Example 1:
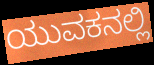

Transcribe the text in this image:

ಯುವಕನಲ್ಲಿ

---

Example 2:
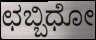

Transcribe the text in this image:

ಛಬ್ಬಿಧೋ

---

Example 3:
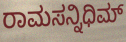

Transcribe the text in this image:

ರಾಮಸನ್ನಿಧಿಮ್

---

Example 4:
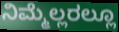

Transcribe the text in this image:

ನಿಮ್ಮೆಲ್ಲರಲ್ಲೂ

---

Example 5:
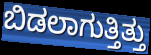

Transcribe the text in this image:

ಬಿಡಲಾಗುತ್ತಿತ್ತು